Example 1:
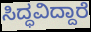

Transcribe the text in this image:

ಸಿದ್ಧವಿದ್ದಾರೆ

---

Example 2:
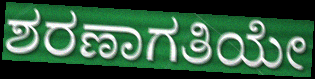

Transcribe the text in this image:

ಶರಣಾಗತಿಯೇ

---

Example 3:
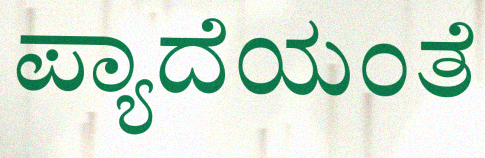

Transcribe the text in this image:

ಪ್ಯಾದೆಯಂತೆ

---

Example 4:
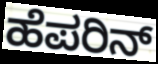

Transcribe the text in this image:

ಹೆಪರಿನ್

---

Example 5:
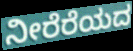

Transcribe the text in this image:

ನೀರೆರೆಯದ